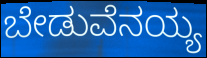
ಬೇಡುವೆನಯ್ಯ